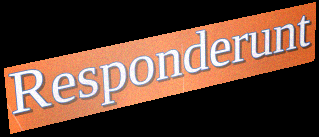
Responderunt